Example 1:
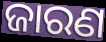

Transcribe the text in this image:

ଜାରଣ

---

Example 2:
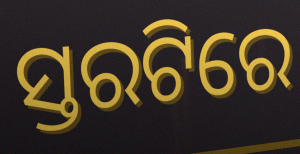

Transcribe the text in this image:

ସ୍ତରଟିରେ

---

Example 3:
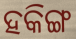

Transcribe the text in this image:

ହକିଙ୍ଗ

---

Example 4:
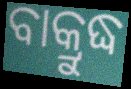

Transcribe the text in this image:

ବାକ୍ରୁଦ୍ଧ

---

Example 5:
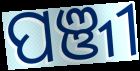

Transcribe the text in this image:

ପଞ୍ଜୀ